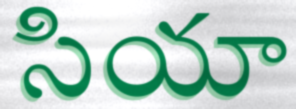
సియా